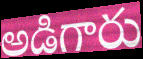
అడిగారు